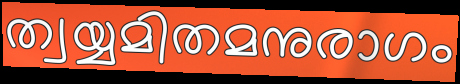
ത്വയ്യമിതമനുരാഗം